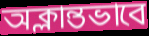
অক্লান্তভাবে